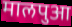
मालपुआ